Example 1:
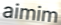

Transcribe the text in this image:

aimim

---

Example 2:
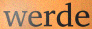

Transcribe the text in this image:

werde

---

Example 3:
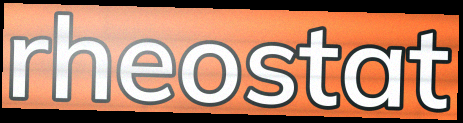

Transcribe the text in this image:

rheostat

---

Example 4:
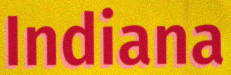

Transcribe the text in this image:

Indiana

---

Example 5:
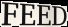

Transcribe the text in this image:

FEED